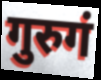
गुरुगं